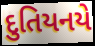
દુતિયનયે